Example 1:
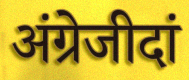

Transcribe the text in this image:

अंग्रेजीदां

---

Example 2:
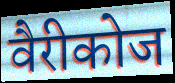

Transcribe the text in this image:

वैरीकोज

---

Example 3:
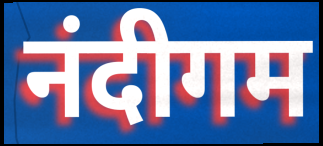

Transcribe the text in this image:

नंदीगम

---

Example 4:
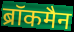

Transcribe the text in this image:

ब्रॉकमैन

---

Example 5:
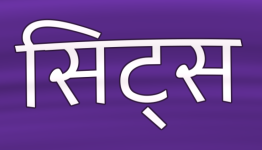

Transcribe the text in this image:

सिट्स